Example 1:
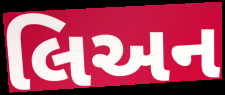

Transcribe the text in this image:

લિઅન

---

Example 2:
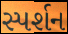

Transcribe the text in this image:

સ્પર્શન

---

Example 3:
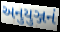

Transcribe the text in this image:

અનુયુઞ્જનં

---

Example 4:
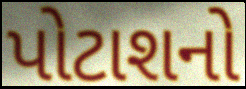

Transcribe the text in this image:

પોટાશનો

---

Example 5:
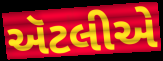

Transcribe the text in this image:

ઍટલીએ